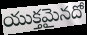
యుక్తమైనదో